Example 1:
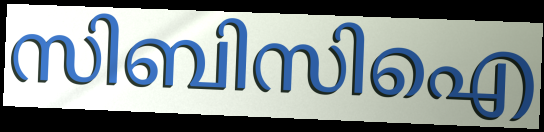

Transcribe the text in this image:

സിബിസിഐ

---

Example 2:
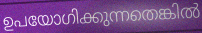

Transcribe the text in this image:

ഉപയോഗിക്കുന്നതെങ്കിൽ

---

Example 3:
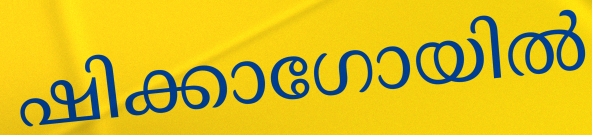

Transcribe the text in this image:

ഷിക്കാഗോയിൽ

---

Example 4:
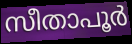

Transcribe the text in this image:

സീതാപൂർ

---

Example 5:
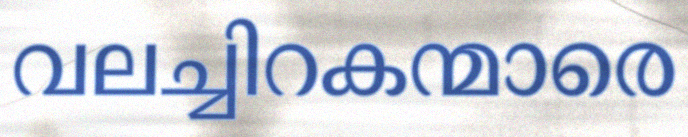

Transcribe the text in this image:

വലച്ചിറകന്മാരെ